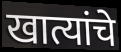
खात्यांचे